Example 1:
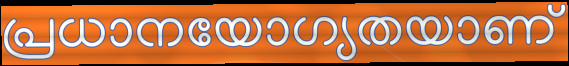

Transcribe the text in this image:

പ്രധാനയോഗ്യതയാണ്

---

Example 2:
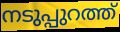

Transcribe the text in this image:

നടുപ്പുറത്ത്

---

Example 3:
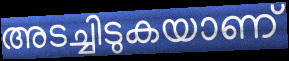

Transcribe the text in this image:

അടച്ചിടുകയാണ്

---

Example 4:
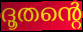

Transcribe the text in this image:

ദൂതന്റെ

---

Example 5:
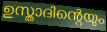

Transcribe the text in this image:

ഉസ്താദിന്റെയും